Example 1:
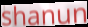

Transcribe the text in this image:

shanun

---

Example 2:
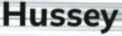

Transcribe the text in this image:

Hussey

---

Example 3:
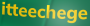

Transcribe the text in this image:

itteechege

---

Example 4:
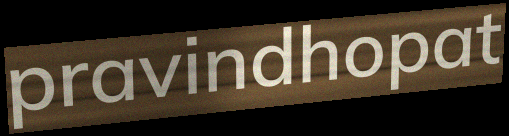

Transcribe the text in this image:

pravindhopat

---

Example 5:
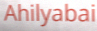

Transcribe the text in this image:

Ahilyabai